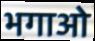
भगाओ